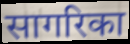
सागरिका